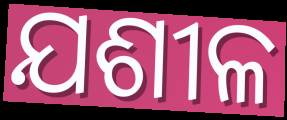
ଯଶୀଳ